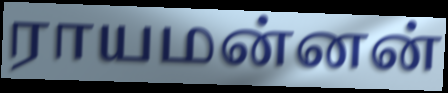
ராயமன்னன்